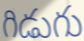
గిడుగు